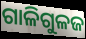
ଗାଳିଗୁଳଜ